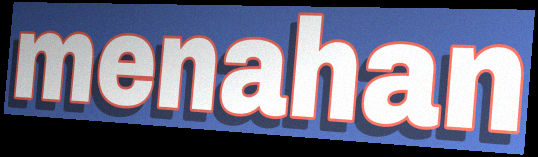
menahan